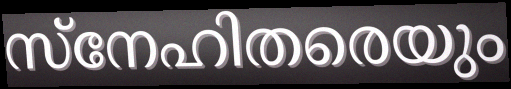
സ്നേഹിതരെയും